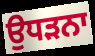
ਉਧੜਨਾ